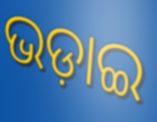
ଭଡ଼ାଇ